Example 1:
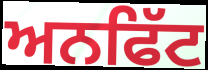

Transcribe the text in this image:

ਅਨਫਿੱਟ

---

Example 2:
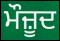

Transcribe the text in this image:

ਮੌਜ਼ੂਦ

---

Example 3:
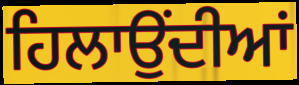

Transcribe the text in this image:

ਹਿਲਾਉਂਦੀਆਂ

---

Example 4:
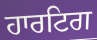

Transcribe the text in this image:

ਹਾਰਟਿਗ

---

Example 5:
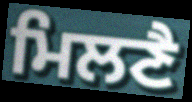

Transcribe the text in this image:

ਮਿਲਣੈ